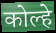
कोल्हे